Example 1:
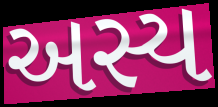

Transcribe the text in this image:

અસ્ય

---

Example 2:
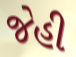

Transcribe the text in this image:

જેહી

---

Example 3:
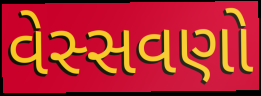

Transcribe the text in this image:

વેસ્સવણો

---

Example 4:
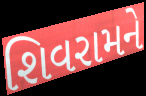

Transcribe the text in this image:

શિવરામને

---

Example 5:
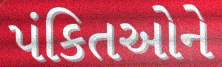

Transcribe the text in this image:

પંકિતઓને